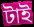
টাই